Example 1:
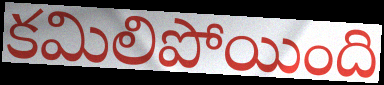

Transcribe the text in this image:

కమిలిపోయింది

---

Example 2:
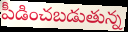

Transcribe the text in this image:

పీడించబడుతున్న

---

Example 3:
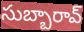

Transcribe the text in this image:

సుబ్బారావ్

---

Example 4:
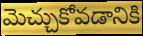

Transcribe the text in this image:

మెచ్చుకోవడానికి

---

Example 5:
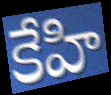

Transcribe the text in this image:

కేహి